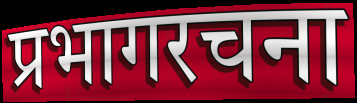
प्रभागरचना